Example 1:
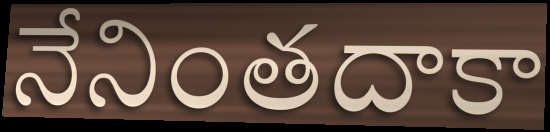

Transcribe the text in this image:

నేనింతదాకా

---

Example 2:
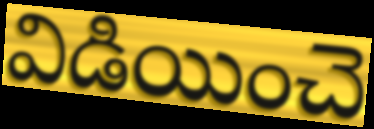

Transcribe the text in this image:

విడియించె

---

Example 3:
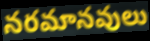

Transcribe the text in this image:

నరమానవులు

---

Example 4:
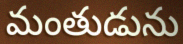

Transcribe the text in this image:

మంతుడును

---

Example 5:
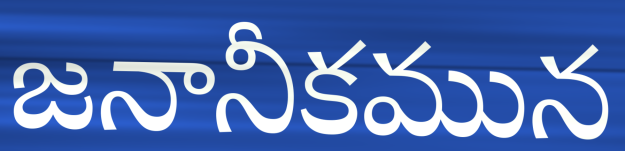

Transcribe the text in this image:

జనానీకమున